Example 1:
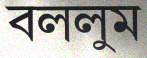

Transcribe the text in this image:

বললুম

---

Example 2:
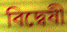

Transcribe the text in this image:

বিদ্বেষী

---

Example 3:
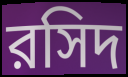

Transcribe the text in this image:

রসিদ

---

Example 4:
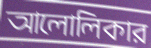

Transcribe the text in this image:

আলোলিকার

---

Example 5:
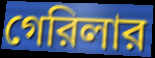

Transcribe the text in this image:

গেরিলার